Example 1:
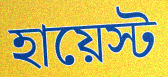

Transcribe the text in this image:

হায়েস্ট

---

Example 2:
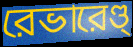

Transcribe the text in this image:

রেভারেণ্ড্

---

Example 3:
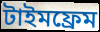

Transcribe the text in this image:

টাইমফ্রেম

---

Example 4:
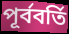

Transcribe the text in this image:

পূর্ববর্তি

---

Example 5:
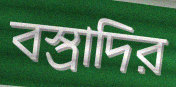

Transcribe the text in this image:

বস্ত্রাদির